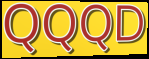
QQQD